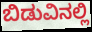
ಬಿಡುವಿನಲ್ಲಿ